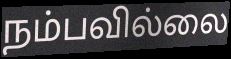
நம்பவில்லை